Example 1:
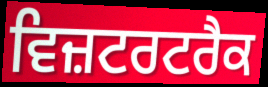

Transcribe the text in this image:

ਵਿਜ਼ਟਰਟਰੈਕ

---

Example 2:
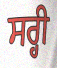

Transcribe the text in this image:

ਸਰ੍ਹੀ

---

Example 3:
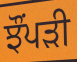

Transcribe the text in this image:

ਝੌਂਪੜੀ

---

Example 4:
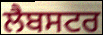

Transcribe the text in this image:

ਲੈਬਸਟਰ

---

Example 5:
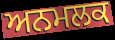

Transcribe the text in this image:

ਅਨਮਲਕ